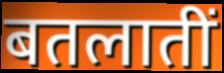
बतलातीं